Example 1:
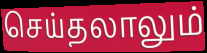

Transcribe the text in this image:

செய்தலாலும்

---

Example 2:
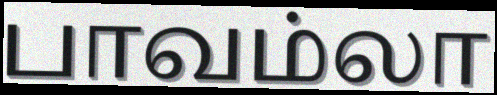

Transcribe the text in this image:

பாவம்லா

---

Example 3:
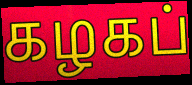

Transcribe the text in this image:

கழகப்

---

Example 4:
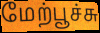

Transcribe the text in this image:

மேற்பூச்சு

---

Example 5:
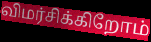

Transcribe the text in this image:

விமர்சிக்கிறோம்